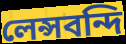
লেন্সবন্দি